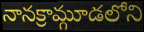
నానక్రామ్గూడలోని